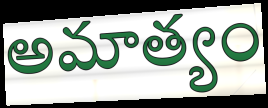
అమాత్యం